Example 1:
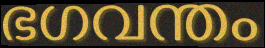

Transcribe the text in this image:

ഭഗവന്തം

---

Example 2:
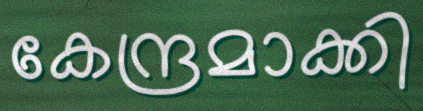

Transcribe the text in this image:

കേന്ദ്രമാക്കി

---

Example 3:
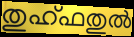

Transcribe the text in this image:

തുഹ്ഫതുൽ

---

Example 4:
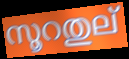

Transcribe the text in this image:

സൂറതുല്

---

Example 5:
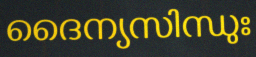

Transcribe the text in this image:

ദൈന്യസിന്ധുഃ